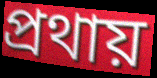
প্রথায়